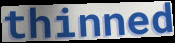
thinned